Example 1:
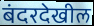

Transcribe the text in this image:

बंदरदेखील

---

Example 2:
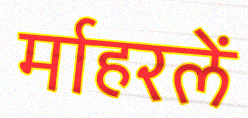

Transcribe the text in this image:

र्माहरलें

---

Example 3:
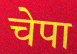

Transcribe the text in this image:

चेपा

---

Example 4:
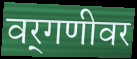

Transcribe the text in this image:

वर्गणीवर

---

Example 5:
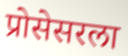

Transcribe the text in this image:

प्रोसेसरला